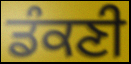
ਡੰਕਣੀ